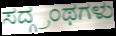
ಸದ್ಗ್ರಂಥಗಳು